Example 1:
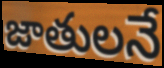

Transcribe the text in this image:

జాతులనే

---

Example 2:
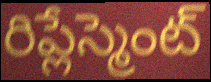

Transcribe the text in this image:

రిప్లేస్మెంట్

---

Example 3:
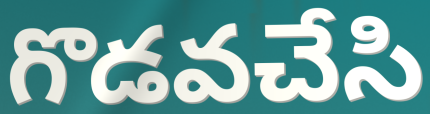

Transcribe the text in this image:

గొడవచేసి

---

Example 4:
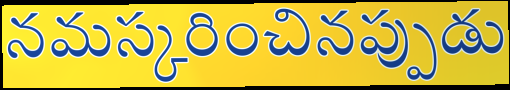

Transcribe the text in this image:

నమస్కరించినప్పుడు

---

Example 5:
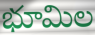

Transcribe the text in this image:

భూమిల